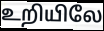
உறியிலே